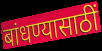
बांधण्यासाठीं